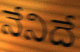
నేనిదే